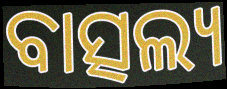
ବାତ୍ସଲ୍ଯ